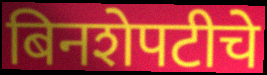
बिनशेपटीचे